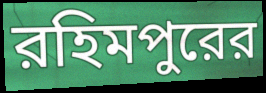
রহিমপুরের